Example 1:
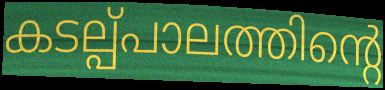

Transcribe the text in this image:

കടല്പ്പാലത്തിന്റെ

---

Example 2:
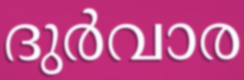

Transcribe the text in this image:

ദുർവാര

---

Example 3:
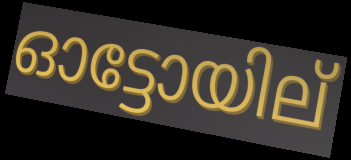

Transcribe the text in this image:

ഓട്ടോയില്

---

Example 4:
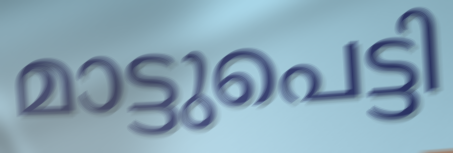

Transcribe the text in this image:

മാട്ടുപെട്ടി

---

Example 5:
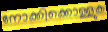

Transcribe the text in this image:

നോക്കിക്കൊള്ളുക